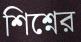
শিশ্নের